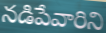
నడిపేవారిని